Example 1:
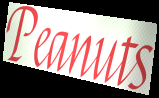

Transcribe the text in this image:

Peanuts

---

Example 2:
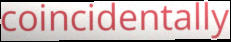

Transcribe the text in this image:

coincidentally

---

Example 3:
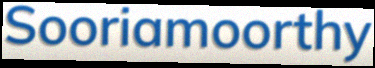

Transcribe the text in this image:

Sooriamoorthy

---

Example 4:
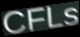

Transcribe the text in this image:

CFLs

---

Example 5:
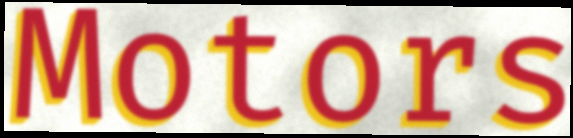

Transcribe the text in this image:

Motors